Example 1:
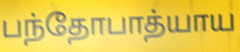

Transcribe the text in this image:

பந்தோபாத்யாய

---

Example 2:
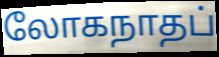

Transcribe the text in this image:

லோகநாதப்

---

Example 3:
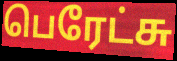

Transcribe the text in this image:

பெரேட்சு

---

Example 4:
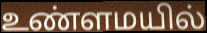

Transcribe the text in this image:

உண்ளமயில்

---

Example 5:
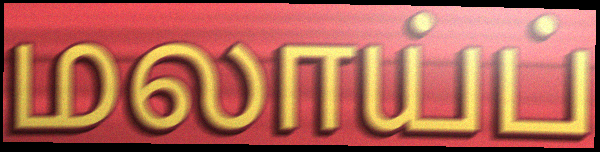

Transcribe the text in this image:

மலாய்ப்